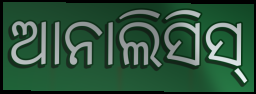
ଆନାଲିସିସ୍